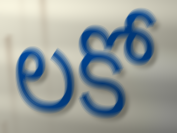
లకో